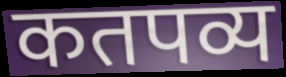
कतपव्य